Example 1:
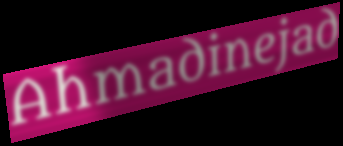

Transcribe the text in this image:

Ahmadinejad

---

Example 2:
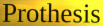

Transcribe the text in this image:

Prothesis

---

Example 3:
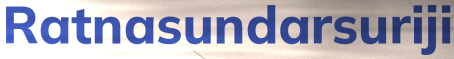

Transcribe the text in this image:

Ratnasundarsuriji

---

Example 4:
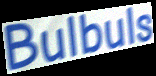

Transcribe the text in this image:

Bulbuls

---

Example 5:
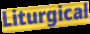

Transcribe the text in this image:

Liturgical